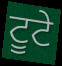
ਟੂਟੇ